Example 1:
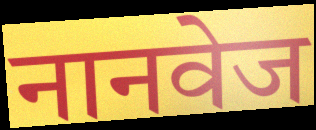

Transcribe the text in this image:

नानवेज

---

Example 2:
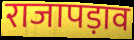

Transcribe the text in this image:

राजापड़ाव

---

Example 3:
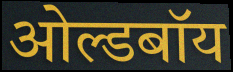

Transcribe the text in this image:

ओल्डबॉय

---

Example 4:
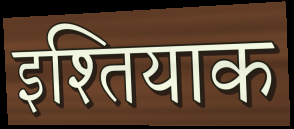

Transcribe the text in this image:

इश्तियाक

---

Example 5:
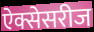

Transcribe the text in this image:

ऐक्सेसरीज